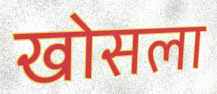
खोसला